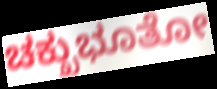
ಚಕ್ಖುಭೂತೋ